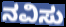
ನವಿಸು